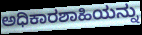
ಅಧಿಕಾರಶಾಹಿಯನ್ನು